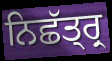
ਨਿਛੱਤ੍ਰ੍ਰ